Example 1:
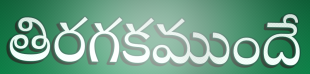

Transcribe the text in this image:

తిరగకముందే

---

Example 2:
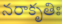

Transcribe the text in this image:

నరాకృతిః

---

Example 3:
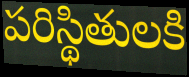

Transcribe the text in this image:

పరిస్థితులకి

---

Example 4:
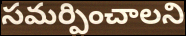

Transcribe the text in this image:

సమర్పించాలని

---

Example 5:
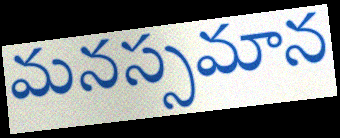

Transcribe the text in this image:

మనస్సమాన